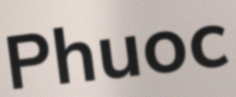
Phuoc